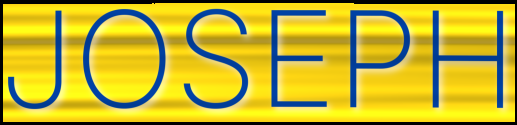
JOSEPH